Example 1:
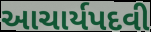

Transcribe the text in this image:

આચાર્યપદવી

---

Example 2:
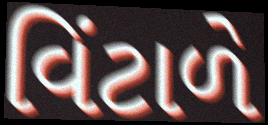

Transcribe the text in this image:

વિંટાળે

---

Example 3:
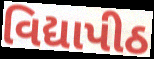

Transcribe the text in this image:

વિદ્યાપીઠ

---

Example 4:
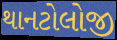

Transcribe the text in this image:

થાનટોલોજી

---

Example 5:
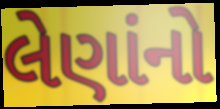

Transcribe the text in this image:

લેણાંનો